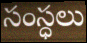
సంస్ధలు